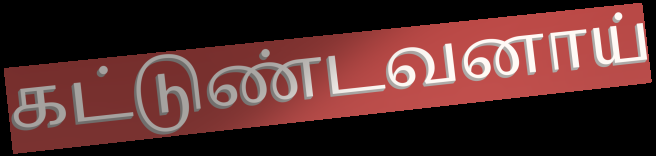
கட்டுண்டவனாய்